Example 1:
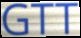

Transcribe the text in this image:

GTT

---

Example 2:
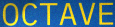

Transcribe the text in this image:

OCTAVE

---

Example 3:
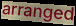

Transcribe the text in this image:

arranged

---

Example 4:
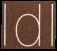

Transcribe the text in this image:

Idl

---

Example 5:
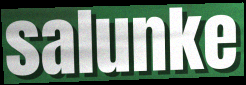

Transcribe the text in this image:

salunke